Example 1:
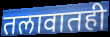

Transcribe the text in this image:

तलावातही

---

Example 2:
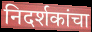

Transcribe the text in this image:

निदर्शकांचा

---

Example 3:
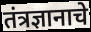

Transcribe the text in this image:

तंत्रज्ञानाचे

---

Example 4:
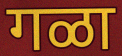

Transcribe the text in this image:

गळा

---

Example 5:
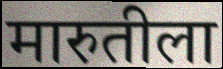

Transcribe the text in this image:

मारुतीला